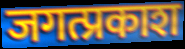
जगत्प्रकाश